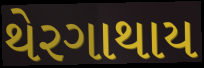
થેરગાથાય